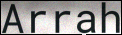
Arrah